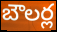
బౌలర్ల